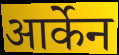
आर्केन